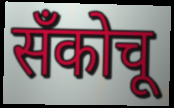
सँकोचू